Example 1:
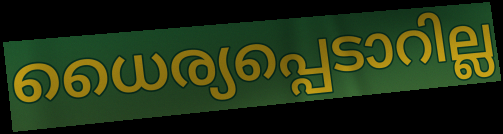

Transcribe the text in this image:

ധൈര്യപ്പെടാറില്ല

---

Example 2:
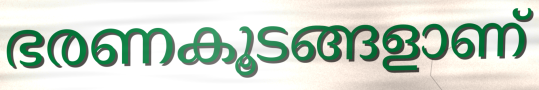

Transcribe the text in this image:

ഭരണകൂടങ്ങളാണ്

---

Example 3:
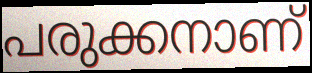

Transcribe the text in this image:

പരുക്കനാണ്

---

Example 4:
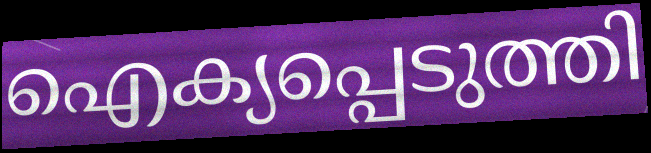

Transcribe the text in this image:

ഐക്യപ്പെടുത്തി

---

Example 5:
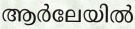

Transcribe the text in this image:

ആർലേയിൽ